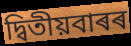
দ্বিতীয়বাৰৰ